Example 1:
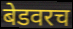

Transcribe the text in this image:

बेडवरच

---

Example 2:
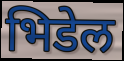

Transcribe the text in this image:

भिडेल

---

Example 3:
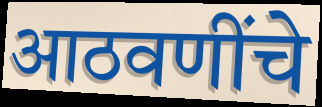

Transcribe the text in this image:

आठवणींचे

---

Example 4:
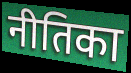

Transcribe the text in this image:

नीतिका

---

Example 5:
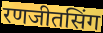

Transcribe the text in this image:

रणजीतसिंग